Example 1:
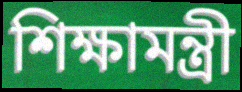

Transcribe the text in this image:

শিক্ষামন্ত্রী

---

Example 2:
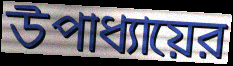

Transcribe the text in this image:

উপাধ্যায়ের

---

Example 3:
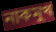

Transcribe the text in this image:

নাকমুখ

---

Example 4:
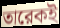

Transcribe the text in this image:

তারেকই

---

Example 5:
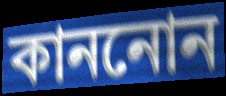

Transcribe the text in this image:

কাননোন